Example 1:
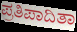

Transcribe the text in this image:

ಪ್ರತಿಪಾದಿತಾ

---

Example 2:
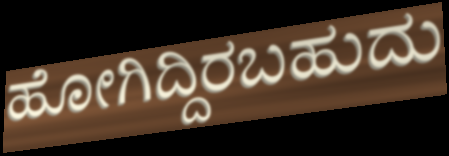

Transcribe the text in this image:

ಹೋಗಿದ್ದಿರಬಹುದು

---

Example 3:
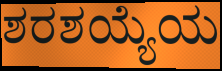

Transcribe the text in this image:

ಶರಶಯ್ಯೆಯ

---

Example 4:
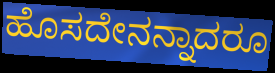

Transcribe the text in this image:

ಹೊಸದೇನನ್ನಾದರೂ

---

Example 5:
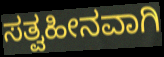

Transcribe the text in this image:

ಸತ್ವಹೀನವಾಗಿ